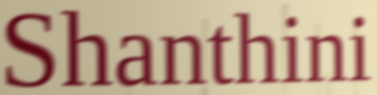
Shanthini